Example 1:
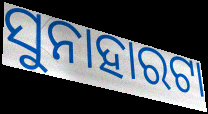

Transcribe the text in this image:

ସୁନାହାରଟା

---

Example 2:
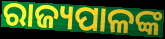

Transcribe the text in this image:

ରାଜ୍ୟପାଳଙ୍କ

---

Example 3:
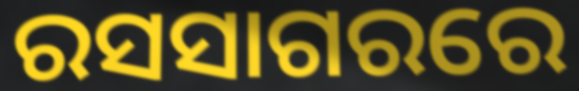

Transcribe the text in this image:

ରସସାଗରରେ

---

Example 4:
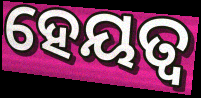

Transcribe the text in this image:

ହେୟତ୍ୱ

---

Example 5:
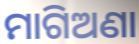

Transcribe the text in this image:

ମାଗିଅଣା